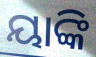
ୟାଙ୍କି